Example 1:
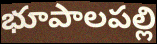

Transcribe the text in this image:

భూపాలపల్లి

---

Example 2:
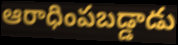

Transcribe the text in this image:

ఆరాధింపబడ్డాడు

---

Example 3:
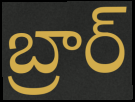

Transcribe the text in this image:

బ్రార్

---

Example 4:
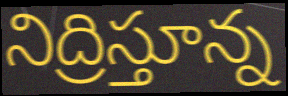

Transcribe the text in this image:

నిద్రిస్తూన్న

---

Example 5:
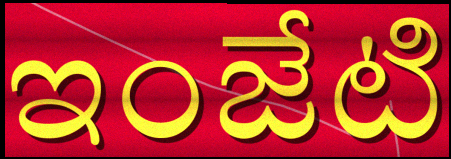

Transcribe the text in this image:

ఇంజేటి